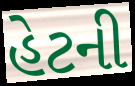
હેટની